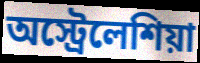
অস্ট্রেলেশিয়া